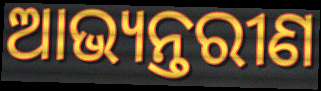
ଆଭ୍ୟନ୍ତରୀଣ